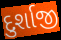
દુર્શાજી